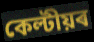
কেল্টীয়ৰ